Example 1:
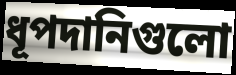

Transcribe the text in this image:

ধূপদানিগুলো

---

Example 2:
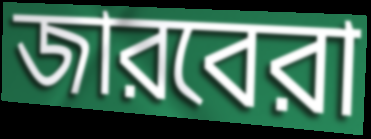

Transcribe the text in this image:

জারবেরা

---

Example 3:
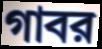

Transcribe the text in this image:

গাবর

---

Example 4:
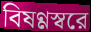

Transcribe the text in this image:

বিষণ্ণস্বরে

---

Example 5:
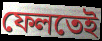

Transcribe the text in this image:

ফেলতেই